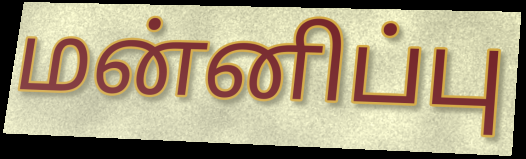
மன்னிப்பு